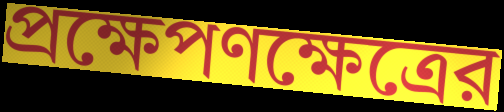
প্রক্ষেপণক্ষেত্রের